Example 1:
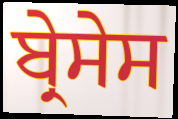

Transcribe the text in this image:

ਬ੍ਰੇਸੇਸ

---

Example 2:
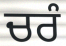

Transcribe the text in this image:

ਚਰੰ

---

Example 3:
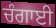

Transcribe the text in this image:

ਚੰਗਾਈ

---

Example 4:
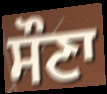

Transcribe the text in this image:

ਸੌਣਾ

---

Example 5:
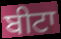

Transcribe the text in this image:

ਬੀਟਾ